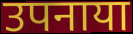
उपनाया